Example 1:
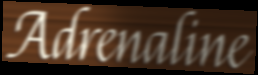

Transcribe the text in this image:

Adrenaline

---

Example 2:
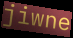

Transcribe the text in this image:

jiwne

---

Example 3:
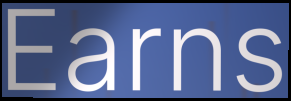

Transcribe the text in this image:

Earns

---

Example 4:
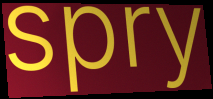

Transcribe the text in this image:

spry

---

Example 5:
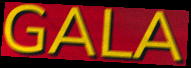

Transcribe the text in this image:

GALA